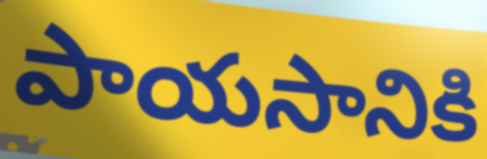
పాయసానికి